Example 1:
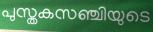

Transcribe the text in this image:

പുസ്തകസഞ്ചിയുടെ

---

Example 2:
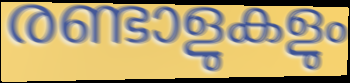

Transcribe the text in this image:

രണ്ടാളുകളും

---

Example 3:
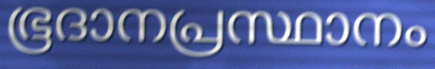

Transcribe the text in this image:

ഭൂദാനപ്രസ്ഥാനം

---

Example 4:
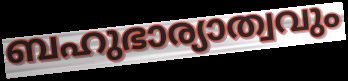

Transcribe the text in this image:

ബഹുഭാര്യാത്വവും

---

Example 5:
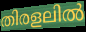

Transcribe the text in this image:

തിരളലിൽ